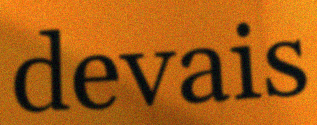
devais